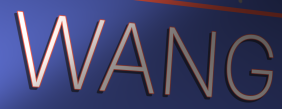
WANG